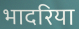
भादरिया